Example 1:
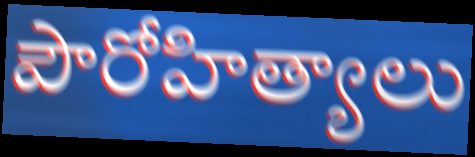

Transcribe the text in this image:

పౌరోహిత్యాలు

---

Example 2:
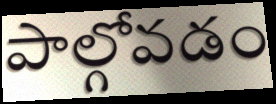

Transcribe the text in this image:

పాల్గోవడం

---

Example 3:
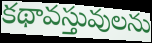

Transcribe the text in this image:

కథావస్తువులను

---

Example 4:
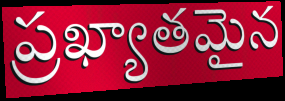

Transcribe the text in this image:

ప్రఖ్యాతమైన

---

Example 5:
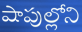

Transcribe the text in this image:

షాపుల్లోని